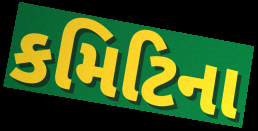
કમિટિના